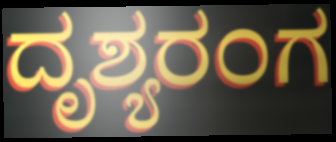
ದೃಶ್ಯರಂಗ